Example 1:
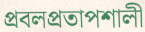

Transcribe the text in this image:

প্রবলপ্রতাপশালী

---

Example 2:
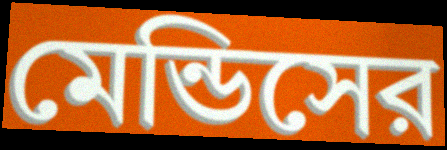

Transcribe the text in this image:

মেন্ডিসের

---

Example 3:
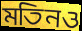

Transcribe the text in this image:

মতিনও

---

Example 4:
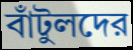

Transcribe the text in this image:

বাঁটুলদের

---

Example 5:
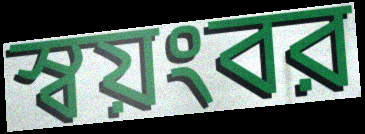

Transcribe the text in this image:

স্বয়ংবর